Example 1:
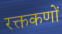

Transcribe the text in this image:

रक्तकणों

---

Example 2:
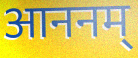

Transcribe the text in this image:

आननम्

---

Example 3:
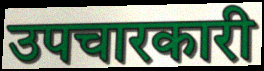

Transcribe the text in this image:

उपचारकारी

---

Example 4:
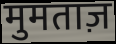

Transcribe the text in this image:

मुमताज़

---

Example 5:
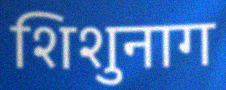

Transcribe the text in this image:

शिशुनाग